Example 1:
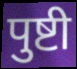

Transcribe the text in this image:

पुष्टी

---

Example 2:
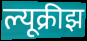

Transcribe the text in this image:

ल्यूक्रीझ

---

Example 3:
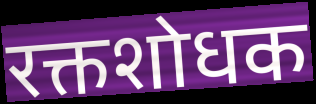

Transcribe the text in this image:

रक्तशोधक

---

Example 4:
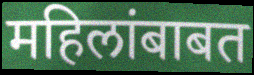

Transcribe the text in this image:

महिलांबाबत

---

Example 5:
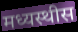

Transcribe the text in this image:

मध्यस्थीस